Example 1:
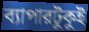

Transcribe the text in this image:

ব্যাপারটুকুই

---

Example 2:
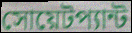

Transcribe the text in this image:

সোয়েটপ্যান্ট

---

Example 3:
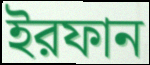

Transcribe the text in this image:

ইরফান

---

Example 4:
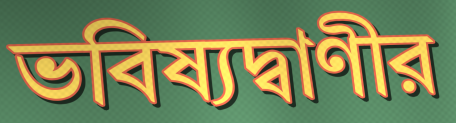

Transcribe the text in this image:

ভবিষ্যদ্বাণীর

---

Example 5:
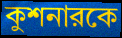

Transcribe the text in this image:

কুশনারকে